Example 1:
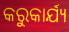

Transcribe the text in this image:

କରୁକାର୍ଯ୍ୟ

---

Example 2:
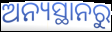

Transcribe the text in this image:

ଅନ୍ୟସ୍ଥାନରୁ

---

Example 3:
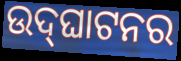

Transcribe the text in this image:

ଉଦ୍‍ଘାଟନର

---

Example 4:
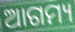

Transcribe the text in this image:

ଆଗମ୍ୟ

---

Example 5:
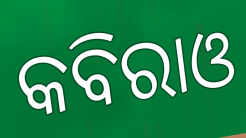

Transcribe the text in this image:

କବିରାଓ